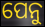
ପେନୁ